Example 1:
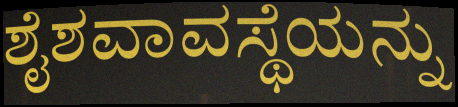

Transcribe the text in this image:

ಶೈಶವಾವಸ್ಥೆಯನ್ನು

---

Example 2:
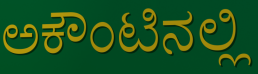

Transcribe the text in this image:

ಅಕೌಂಟಿನಲ್ಲಿ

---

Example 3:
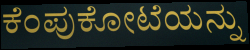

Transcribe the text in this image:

ಕೆಂಪುಕೋಟೆಯನ್ನು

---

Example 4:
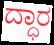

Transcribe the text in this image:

ದ್ಧಾರ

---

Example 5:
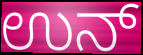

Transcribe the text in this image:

ಉನ್